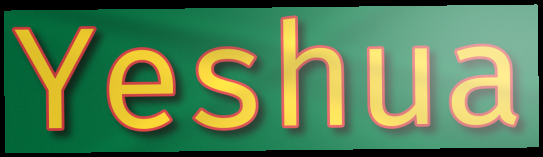
Yeshua